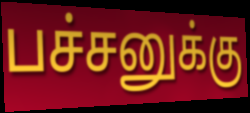
பச்சனுக்கு